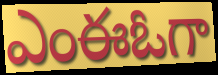
ఎంఈఓగా